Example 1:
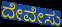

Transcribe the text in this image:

ದೇವೇಸು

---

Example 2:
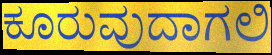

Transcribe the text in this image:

ಕೂರುವುದಾಗಲಿ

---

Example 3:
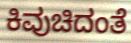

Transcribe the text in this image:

ಕಿವುಚಿದಂತೆ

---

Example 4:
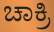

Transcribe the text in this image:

ಚಾಕ್ರಿ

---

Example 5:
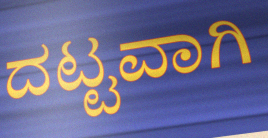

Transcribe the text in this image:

ದಟ್ಟವಾಗಿ